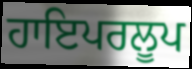
ਹਾਇਪਰਲੂਪ